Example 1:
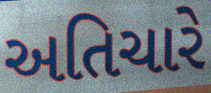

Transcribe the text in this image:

અતિચારે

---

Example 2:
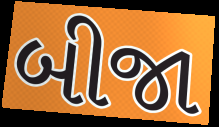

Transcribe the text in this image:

બીજા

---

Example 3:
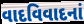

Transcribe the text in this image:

વાદવિવાદનાં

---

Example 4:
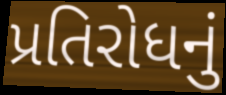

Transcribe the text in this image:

પ્રતિરોધનું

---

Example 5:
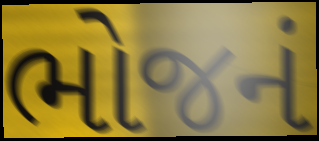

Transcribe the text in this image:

ભોજનં